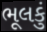
ભૂલકું